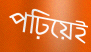
পঢ়িয়েই